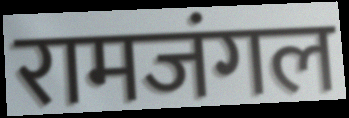
रामजंगल